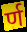
र्ण